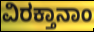
ವಿರಕ್ತಾನಾಂ